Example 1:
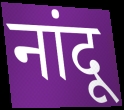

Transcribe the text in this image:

नांदू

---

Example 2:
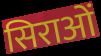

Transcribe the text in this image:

सिराओं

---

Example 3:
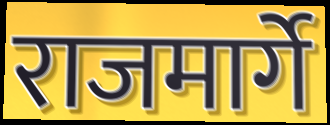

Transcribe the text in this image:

राजमार्गे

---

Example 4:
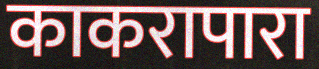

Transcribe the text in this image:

काकरापारा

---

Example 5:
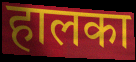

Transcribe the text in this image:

हालका